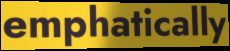
emphatically